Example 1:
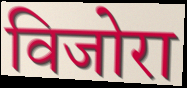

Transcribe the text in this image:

विजोरा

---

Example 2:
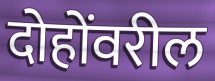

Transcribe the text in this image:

दोहोंवरील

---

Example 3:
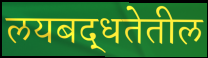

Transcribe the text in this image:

लयबद्धतेतील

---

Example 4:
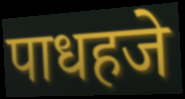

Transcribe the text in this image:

पाधहजे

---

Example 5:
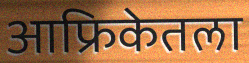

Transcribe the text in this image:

आफ्रिकेतला